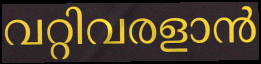
വറ്റിവരളാൻ